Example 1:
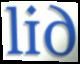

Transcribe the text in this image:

lid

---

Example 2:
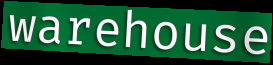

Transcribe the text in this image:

warehouse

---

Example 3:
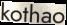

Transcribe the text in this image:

kothao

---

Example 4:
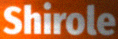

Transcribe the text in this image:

Shirole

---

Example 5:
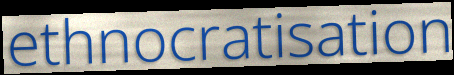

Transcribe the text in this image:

ethnocratisation